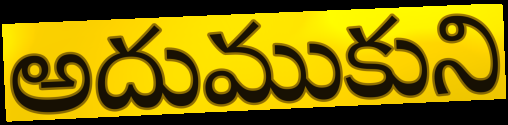
అదుముకుని